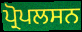
ਪ੍ਰੋਪਲਸਨ